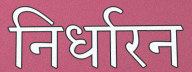
निर्धारन